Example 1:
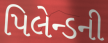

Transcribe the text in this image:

પિલેન્ડની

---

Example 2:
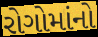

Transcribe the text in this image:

રોગોમાંનો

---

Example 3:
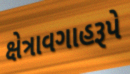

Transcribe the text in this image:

ક્ષેત્રાવગાહરૂપે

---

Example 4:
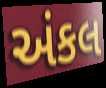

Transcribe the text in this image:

અંકલ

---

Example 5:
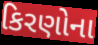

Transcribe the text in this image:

કિરણોના